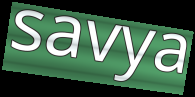
savya